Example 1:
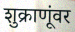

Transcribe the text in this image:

शुक्राणूंवर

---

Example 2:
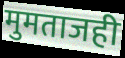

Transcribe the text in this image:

मुमताजही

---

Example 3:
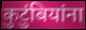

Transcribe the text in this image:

कुटुंबियांना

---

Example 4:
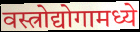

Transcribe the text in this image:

वस्त्रोद्योगामध्ये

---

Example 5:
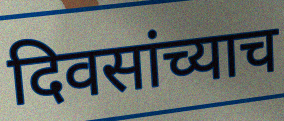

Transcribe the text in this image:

दिवसांच्याच